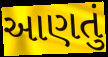
આણતું